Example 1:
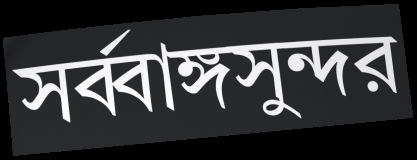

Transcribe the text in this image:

সর্ব্বাঙ্গসুন্দর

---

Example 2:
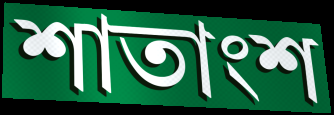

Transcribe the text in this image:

শাতাংশ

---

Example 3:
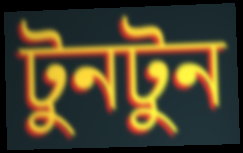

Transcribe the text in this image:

টুনটুন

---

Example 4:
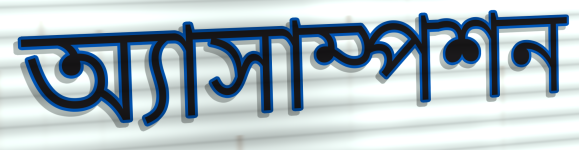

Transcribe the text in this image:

অ্যাসাম্পশন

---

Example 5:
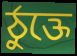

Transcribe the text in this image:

ঠুক্তে